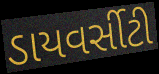
ડાયવર્સીટી